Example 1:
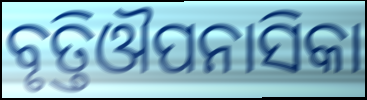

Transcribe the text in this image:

ବୃତ୍ତିଔପନାସିକା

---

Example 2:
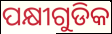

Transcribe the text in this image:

ପକ୍ଷୀଗୁଡିକ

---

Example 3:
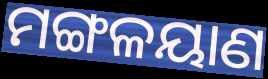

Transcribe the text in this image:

ମଙ୍ଗଳୟାଣ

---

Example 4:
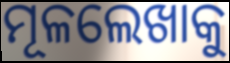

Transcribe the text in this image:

ମୂଳଲେଖାକୁ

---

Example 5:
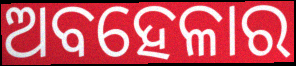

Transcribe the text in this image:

ଅବହେଳାର